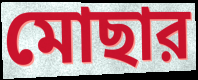
মোছার